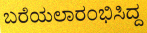
ಬರೆಯಲಾರಂಭಿಸಿದ್ದ